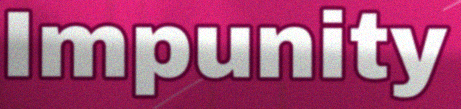
Impunity